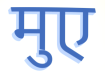
मुए